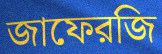
জাফেরজি